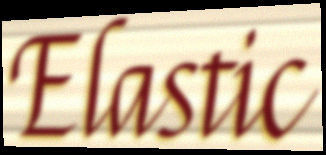
Elastic